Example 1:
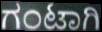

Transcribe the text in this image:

ಗಂಟಾಗಿ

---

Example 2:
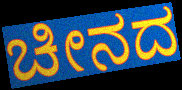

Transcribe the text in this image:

ಚೀನದ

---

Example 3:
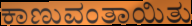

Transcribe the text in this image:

ಕಾಣುವಂತಾಯಿತು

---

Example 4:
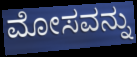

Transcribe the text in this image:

ಮೋಸವನ್ನು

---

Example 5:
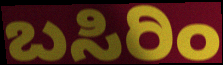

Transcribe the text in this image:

ಬಸಿರಿಂ